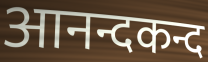
आनन्दकन्द